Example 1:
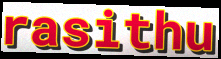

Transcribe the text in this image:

rasithu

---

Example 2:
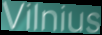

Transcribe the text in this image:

Vilnius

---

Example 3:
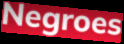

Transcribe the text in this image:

Negroes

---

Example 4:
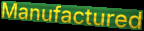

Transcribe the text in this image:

Manufactured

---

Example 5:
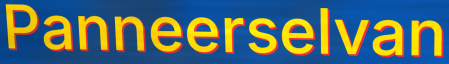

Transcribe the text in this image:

Panneerselvan